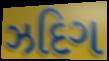
ઝદિગ